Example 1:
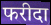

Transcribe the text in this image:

फरीदा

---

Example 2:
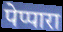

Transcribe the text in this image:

पेप्पारा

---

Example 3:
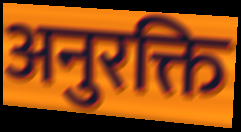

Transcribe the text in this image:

अनुरक्ति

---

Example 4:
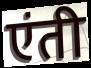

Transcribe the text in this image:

एंती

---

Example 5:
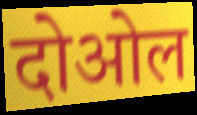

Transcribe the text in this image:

दोओल